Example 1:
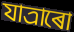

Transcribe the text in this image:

যাত্ৰাৰো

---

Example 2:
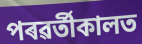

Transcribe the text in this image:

পৰৱৰ্তীকালত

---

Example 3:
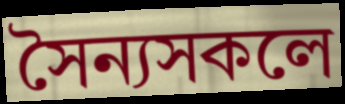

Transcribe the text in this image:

সৈন্যসকলে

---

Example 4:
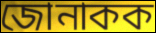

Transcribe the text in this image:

জোনাকক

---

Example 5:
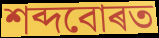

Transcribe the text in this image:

শব্দবোৰত